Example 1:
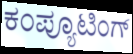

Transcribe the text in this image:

ಕಂಪ್ಯೂಟಿಂಗ್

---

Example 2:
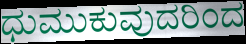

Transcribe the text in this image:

ಧುಮುಕುವುದರಿಂದ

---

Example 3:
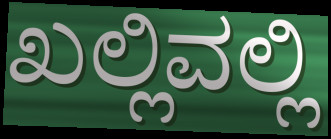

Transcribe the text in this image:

ಖಲ್ಲಿವಲ್ಲಿ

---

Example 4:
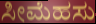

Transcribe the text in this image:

ಸೀಮೆಹಸು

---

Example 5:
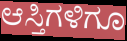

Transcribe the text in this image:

ಆಸ್ತಿಗಳಿಗೂ